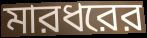
মারধরের